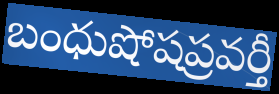
బంధుషోషప్రవర్తీ